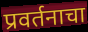
प्रवर्तनाचा